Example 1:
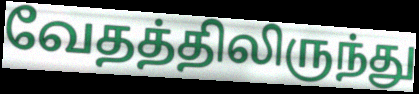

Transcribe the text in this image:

வேதத்திலிருந்து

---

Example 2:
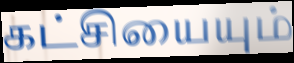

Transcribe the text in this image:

கட்சியையும்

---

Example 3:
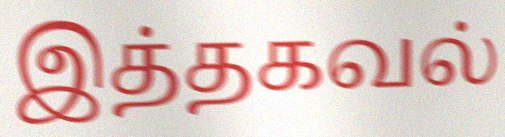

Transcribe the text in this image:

இத்தகவல்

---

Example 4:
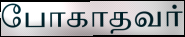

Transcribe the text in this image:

போகாதவர்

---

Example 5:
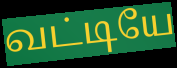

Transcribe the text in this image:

வட்டியே